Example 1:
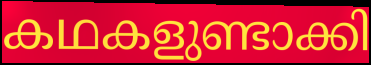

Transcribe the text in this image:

കഥകളുണ്ടാക്കി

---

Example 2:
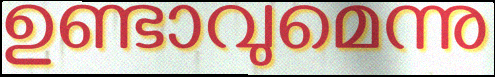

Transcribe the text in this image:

ഉണ്ടാവുമെന്നു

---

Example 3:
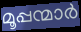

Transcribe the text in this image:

മൂപ്പന്മാർ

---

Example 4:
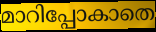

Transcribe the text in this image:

മാറിപ്പോകാതെ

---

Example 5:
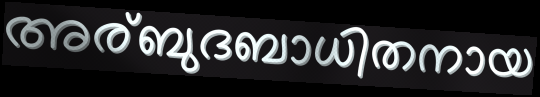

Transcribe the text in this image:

അര്ബുദബാധിതനായ